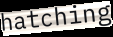
hatching